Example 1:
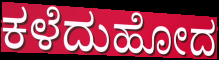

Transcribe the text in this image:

ಕಳೆದುಹೋದ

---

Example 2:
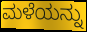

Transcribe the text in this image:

ಮಳೆಯನ್ನು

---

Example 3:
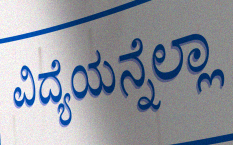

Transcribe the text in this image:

ವಿದ್ಯೆಯನ್ನೆಲ್ಲಾ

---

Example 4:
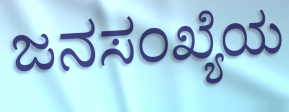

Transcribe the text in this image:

ಜನಸಂಖ್ಯೆಯ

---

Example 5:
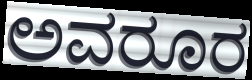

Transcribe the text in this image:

ಅವರೂರ